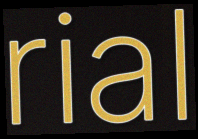
rial